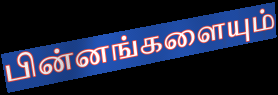
பின்னங்களையும்